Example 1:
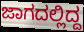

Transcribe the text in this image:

ಜಾಗದಲ್ಲಿದ್ದ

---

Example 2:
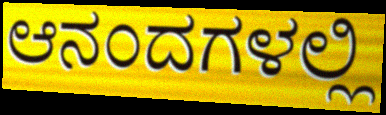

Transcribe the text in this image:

ಆನಂದಗಳಲ್ಲಿ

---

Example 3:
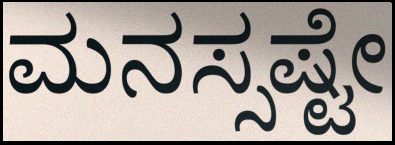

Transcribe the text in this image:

ಮನಸ್ಸಷ್ಟೇ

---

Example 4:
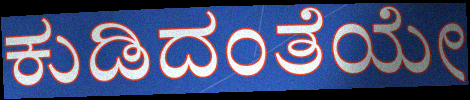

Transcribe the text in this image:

ಕುಡಿದಂತೆಯೇ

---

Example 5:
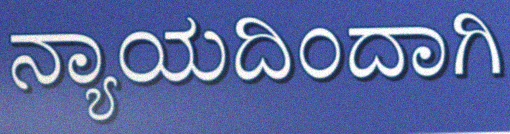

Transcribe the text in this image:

ನ್ಯಾಯದಿಂದಾಗಿ